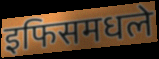
इफिसमधले